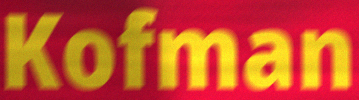
Kofman